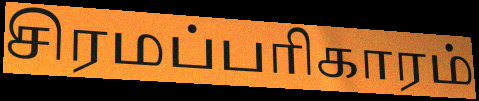
சிரமப்பரிகாரம்